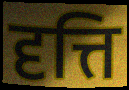
दृत्ति